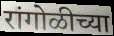
रांगोळीच्या